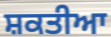
ਸ਼ਕਤੀਆ